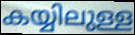
കയ്യിലുള്ള